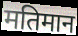
मतिमान